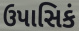
ઉપાસિકં